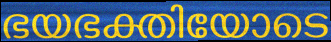
ഭയഭക്തിയോടെ